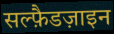
सल्फ़ैडज़ाइन